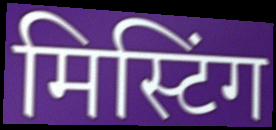
मिस्टिंग